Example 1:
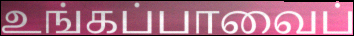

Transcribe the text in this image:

உங்கப்பாவைப்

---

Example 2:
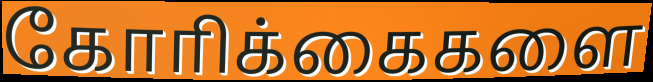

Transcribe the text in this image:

கோரிக்கைகளை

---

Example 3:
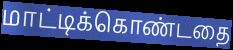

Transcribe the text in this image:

மாட்டிக்கொண்டதை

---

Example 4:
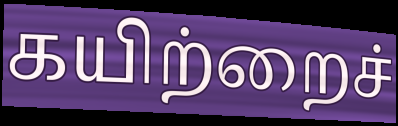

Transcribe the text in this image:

கயிற்றைச்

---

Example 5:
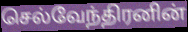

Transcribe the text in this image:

செல்வேந்திரனின்